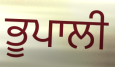
ਭੂਪਾਲੀ